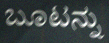
ಬೂಟನ್ನು